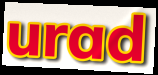
urad